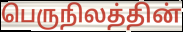
பெருநிலத்தின்